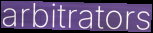
arbitrators